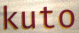
kuto